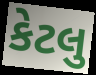
કેટલુ